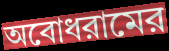
অবোধরামের